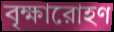
বৃক্ষারোহণ